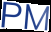
PM